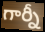
గార్నీ